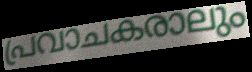
പ്രവാചകരാലും